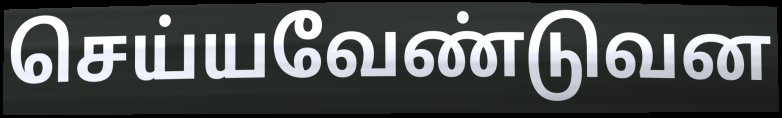
செய்யவேண்டுவன